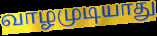
வாழமுடியாது